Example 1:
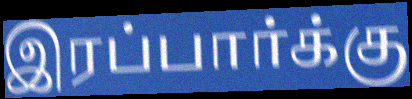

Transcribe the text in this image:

இரப்பார்க்கு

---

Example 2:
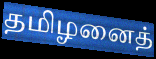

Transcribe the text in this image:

தமிழனைத்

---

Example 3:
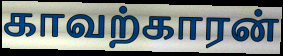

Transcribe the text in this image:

காவற்காரன்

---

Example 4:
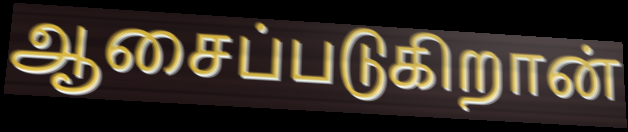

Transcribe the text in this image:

ஆசைப்படுகிறான்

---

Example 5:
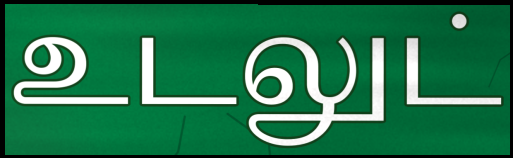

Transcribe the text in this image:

உடலுட்